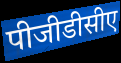
पीजीडीसीए